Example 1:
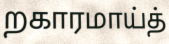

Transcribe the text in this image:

றகாரமாய்த்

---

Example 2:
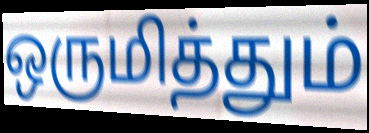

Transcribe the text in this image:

ஒருமித்தும்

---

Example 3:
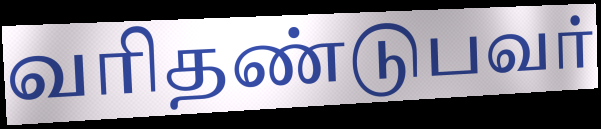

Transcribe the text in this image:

வரிதண்டுபவர்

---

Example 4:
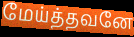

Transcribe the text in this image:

மேய்த்தவனே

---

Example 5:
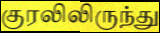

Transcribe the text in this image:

குரலிலிருந்து